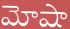
మోషా